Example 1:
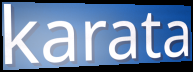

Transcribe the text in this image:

karata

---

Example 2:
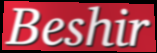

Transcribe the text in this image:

Beshir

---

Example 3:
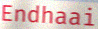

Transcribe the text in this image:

Endhaai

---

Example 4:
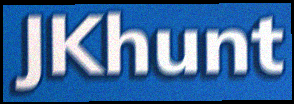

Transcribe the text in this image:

JKhunt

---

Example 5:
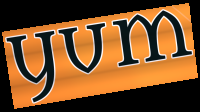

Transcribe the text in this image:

yum